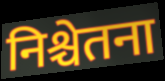
निश्चेतना